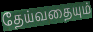
தேய்வதையும்